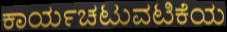
ಕಾರ್ಯಚಟುವಟಿಕೆಯ